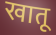
खातू